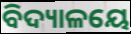
ବିଦ୍ୟାଳୟେ